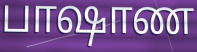
பாஷாண